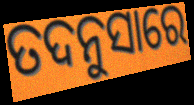
ତଦନୁସାରେ